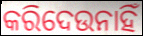
କରିଦେଉନାହିଁ